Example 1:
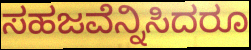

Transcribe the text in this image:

ಸಹಜವೆನ್ನಿಸಿದರೂ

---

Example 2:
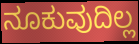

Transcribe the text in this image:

ನೂಕುವುದಿಲ್ಲ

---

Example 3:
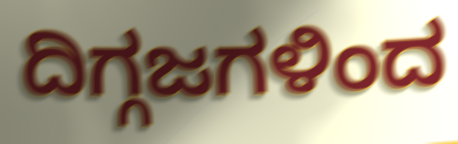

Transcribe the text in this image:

ದಿಗ್ಗಜಗಳಿಂದ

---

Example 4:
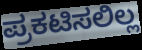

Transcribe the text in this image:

ಪ್ರಕಟಿಸಲಿಲ್ಲ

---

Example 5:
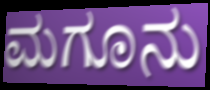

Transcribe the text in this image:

ಮಗೂನು